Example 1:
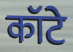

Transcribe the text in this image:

कॉटे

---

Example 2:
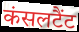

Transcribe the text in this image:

कंसलटैंट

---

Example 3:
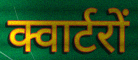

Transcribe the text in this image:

क्वार्टरों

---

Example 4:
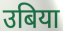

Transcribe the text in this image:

उबिया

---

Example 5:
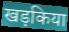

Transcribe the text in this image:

खड़किया